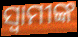
ସ୍ବାମୀଙ୍କ